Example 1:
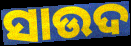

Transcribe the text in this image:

ସାଉଦ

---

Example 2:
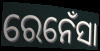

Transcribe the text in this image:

ରେନେଁସା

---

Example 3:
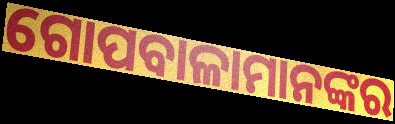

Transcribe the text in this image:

ଗୋପବାଳାମାନଙ୍କର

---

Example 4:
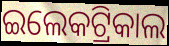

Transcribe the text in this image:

ଇଲେକଟ୍ରିକାଲ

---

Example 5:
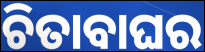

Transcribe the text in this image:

ଚିତାବାଘର